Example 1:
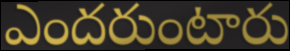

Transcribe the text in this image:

ఎందరుంటారు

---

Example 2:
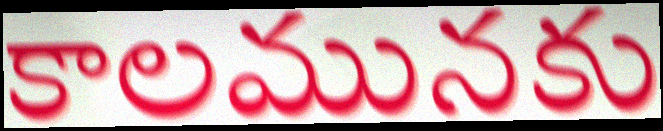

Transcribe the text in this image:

కాలమునకు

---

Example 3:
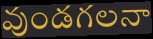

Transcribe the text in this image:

వుండగలనా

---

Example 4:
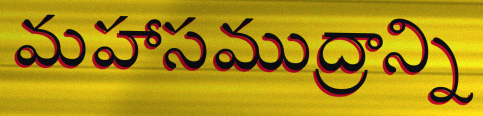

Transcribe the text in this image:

మహాసముద్రాన్ని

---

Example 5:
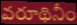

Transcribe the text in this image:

వరూథినీం